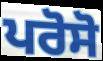
ਪਰੋਸੋ